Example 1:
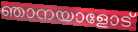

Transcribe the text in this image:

ഞാനയാളോട്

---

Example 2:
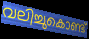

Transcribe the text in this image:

വലിച്ചുകൊണ്ട്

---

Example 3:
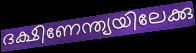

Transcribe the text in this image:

ദക്ഷിണേന്ത്യയിലേക്കു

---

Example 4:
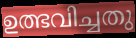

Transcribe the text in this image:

ഉത്ഭവിച്ചതു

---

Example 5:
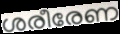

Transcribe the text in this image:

ശരീരേണ